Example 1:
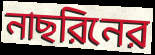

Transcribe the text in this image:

নাছরিনের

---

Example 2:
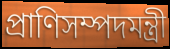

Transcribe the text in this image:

প্রাণিসম্পদমন্ত্রী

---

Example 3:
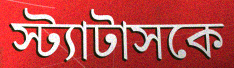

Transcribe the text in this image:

স্ট্যাটাসকে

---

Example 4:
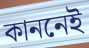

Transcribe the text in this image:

কাননেই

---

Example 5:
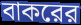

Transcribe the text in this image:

বাকরের